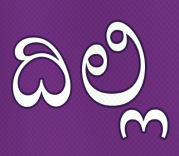
ದಿಲ್ಲಿ